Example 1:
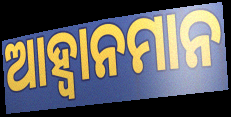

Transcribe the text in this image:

ଆହ୍ୱାନମାନ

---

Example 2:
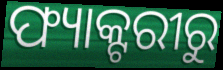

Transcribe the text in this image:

ଫ୍ୟାକ୍ଟରୀରୁ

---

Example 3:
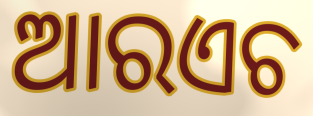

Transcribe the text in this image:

ଆରଏଚ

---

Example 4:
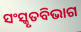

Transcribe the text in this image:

ସଂସ୍କୃତବିଭାଗ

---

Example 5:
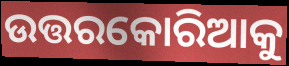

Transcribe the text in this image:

ଉତ୍ତରକୋରିଆକୁ